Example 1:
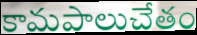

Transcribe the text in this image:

కామపాలుచేతం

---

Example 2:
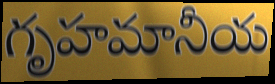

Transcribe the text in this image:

గృహమానీయ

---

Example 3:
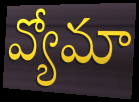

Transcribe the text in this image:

వ్యోమా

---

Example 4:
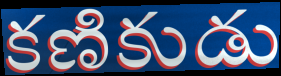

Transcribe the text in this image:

కణికుడు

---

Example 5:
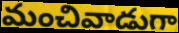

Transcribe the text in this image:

మంచివాడుగా